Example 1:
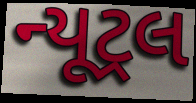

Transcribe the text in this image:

ન્યૂટ્રલ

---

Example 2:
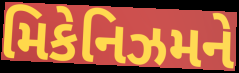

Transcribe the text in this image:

મિકેનિઝમને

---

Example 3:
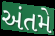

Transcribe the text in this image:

અંતમે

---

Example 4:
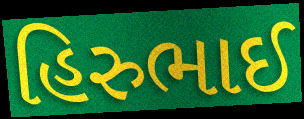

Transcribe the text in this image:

હિરુભાઈ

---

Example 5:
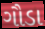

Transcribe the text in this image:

ગૌડા